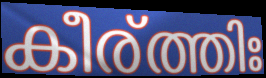
കീര്ത്തിഃ